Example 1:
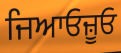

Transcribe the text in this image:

ਜਿਆਓਜ਼ੂਓ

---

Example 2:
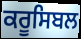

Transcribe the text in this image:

ਕਰੂਸਿਬਲ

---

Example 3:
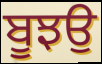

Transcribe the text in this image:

ਬੂਝਉ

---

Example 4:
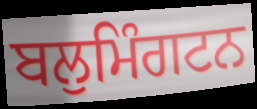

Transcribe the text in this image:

ਬਲੁਮਿੰਗਟਨ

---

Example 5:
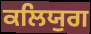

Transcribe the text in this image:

ਕਲਿਯੁਗ